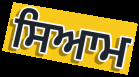
ਸਿਆਮ